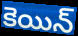
కెయిన్